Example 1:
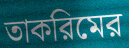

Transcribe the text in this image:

তাকরিমের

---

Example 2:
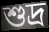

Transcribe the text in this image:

শুদ্র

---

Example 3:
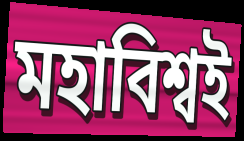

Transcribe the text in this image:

মহাবিশ্বই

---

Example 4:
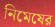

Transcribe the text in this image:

নিমেষের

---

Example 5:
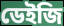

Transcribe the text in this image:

ডেইজি